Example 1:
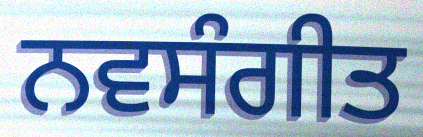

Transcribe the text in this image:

ਨਵਸੰਗੀਤ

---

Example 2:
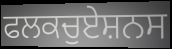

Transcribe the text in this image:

ਫਲਕਚੁਏਸ਼ਨਸ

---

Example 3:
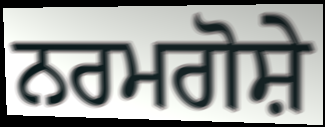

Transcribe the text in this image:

ਨਰਮਗੋਸ਼ੇ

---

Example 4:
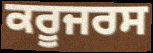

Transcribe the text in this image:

ਕਰੂਜਰਸ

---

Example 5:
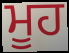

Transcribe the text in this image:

ਮੂਹ